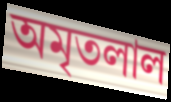
অমৃতলাল